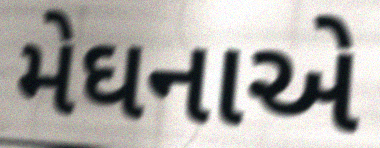
મેઘનાએ